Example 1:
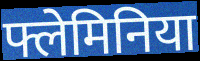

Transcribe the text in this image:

फ्लेमिनिया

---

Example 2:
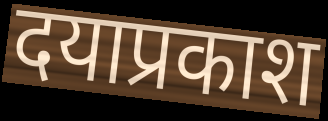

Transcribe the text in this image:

दयाप्रकाश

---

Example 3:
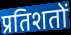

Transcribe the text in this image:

प्रतिशतों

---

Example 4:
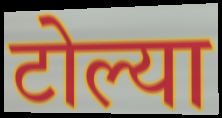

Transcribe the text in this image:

टोल्या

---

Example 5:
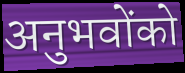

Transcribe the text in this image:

अनुभवोंको